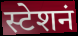
स्टेशनं